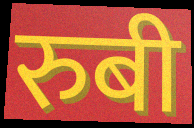
रुबी